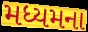
મધ્યમના